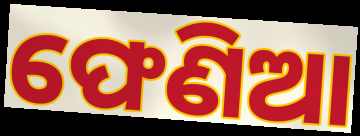
ଫେଣିଆ